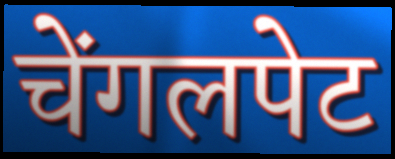
चेंगलपेट